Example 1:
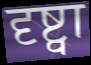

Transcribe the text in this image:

दृष्ट्वा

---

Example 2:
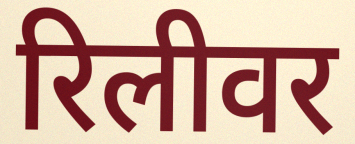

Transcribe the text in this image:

रिलीवर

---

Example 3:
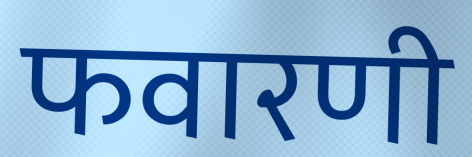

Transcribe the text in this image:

फवारणी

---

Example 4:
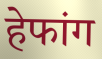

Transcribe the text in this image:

हेफांग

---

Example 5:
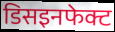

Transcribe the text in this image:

डिसइनफेक्ट